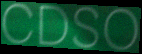
CDSO